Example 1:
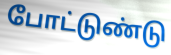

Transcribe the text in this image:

போட்டுண்டு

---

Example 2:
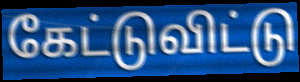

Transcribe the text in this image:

கேட்டுவிட்டு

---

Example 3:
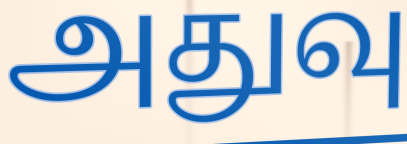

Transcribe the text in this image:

அதுவு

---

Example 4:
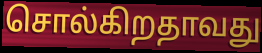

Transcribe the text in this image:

சொல்கிறதாவது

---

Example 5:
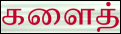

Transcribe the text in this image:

களைத்